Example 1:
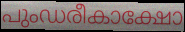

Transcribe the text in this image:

പുംഡരീകാക്ഷോ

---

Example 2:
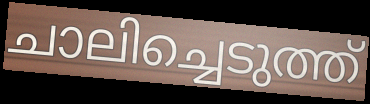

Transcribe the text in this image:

ചാലിച്ചെടുത്ത്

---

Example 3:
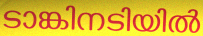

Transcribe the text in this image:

ടാങ്കിനടിയിൽ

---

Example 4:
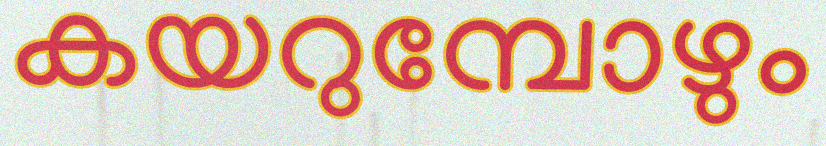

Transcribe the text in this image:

കയറുമ്പോഴും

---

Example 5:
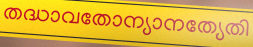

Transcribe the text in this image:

തദ്ധാവതോന്യാനത്യേതി